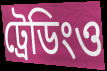
ট্রেডিংও